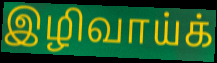
இழிவாய்க்